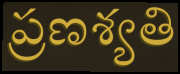
ప్రణశ్యతి